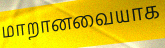
மாறானவையாக